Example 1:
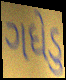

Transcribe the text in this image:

ગધેડુ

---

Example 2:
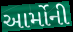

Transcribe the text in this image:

આર્મોની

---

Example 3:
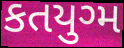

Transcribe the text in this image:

કતયુગ્મ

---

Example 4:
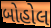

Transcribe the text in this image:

બોહોલ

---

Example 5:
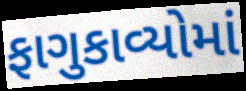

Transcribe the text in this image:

ફાગુકાવ્યોમાં